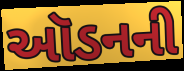
ઑડનની